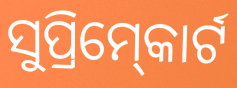
ସୁପ୍ରିମ୍‍କୋର୍ଟ